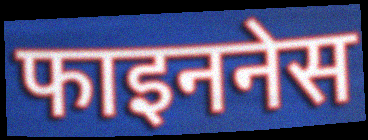
फाइननेस